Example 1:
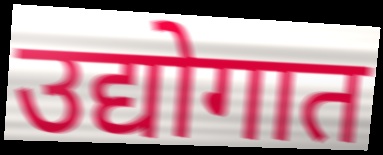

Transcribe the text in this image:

उद्योगात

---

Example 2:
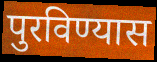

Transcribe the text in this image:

पुरविण्यास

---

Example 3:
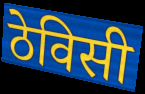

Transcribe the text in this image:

ठेविसी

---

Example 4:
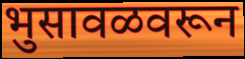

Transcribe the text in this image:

भुसावळवरून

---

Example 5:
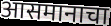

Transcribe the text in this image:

आसमानाचा